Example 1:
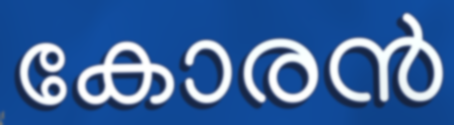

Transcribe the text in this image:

കോരൻ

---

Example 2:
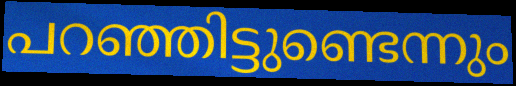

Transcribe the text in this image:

പറഞ്ഞിട്ടുണ്ടെന്നും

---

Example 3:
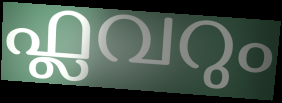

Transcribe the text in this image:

ഫ്ലവറും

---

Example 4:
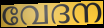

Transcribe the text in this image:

വേദന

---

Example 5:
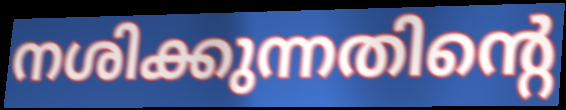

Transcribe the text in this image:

നശിക്കുന്നതിന്റെ